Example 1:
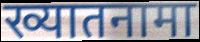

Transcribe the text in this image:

ख्यातनामा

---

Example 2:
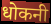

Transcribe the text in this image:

धोकनी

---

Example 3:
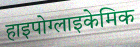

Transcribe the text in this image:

हाइपोग्लाइकेमिक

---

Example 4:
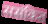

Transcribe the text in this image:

ससंकित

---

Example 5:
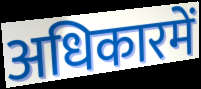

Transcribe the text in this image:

अधिकारमें